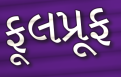
ફૂલપ્રૂફ